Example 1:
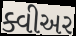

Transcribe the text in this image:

ક્વીઅર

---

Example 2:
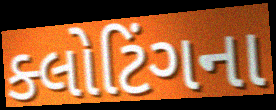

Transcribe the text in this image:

ક્લોટિંગના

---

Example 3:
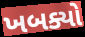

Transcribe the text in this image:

ખબક્યો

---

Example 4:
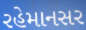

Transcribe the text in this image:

રહેમાનસર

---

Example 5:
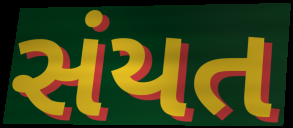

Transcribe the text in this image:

સંયત